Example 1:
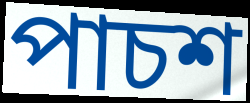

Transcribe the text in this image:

পাচশ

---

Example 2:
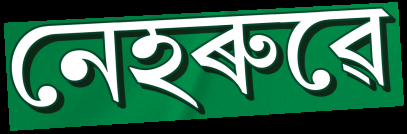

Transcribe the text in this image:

নেহৰুৱে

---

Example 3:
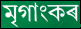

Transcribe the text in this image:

মৃগাংকৰ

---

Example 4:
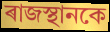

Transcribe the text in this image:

ৰাজস্থানকে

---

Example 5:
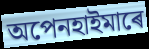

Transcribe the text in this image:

অপেনহাইমাৰে